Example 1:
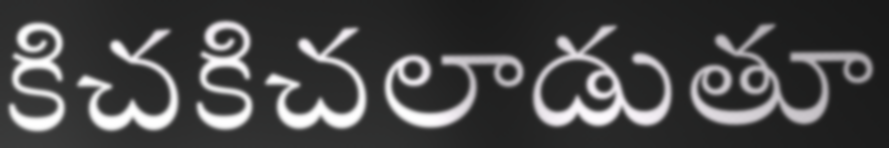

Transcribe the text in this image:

కిచకిచలాడుతూ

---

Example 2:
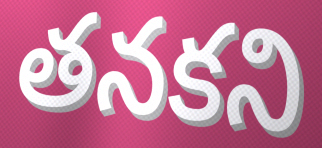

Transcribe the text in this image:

తనకని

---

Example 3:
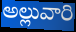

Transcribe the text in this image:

అల్లువారి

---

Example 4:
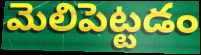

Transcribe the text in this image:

మెలిపెట్టడం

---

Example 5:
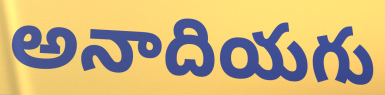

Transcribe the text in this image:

అనాదియగు